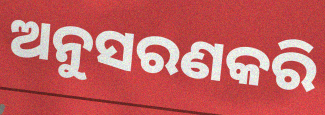
ଅନୁସରଣକରି